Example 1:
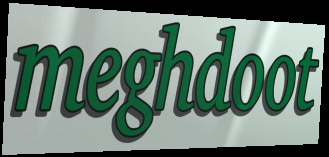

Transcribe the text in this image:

meghdoot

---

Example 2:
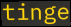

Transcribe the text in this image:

tinge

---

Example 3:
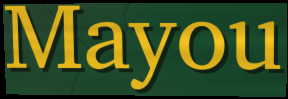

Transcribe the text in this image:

Mayou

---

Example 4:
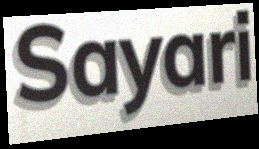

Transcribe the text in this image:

Sayari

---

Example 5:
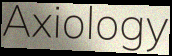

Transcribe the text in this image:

Axiology